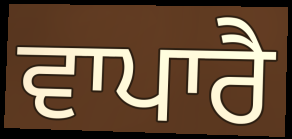
ਵਾਪਾਰੈ